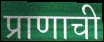
प्राणाची